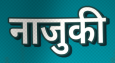
नाजुकी